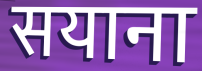
सयाना